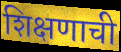
शिक्षणाची